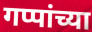
गप्पांच्या